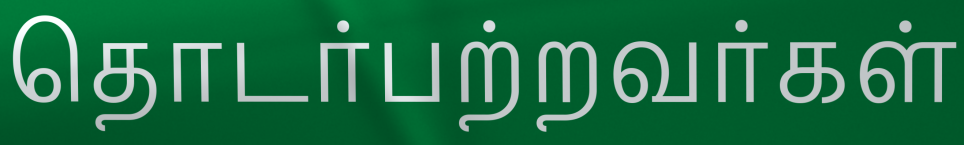
தொடர்பற்றவர்கள்